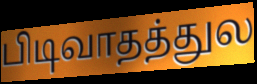
பிடிவாதத்துல